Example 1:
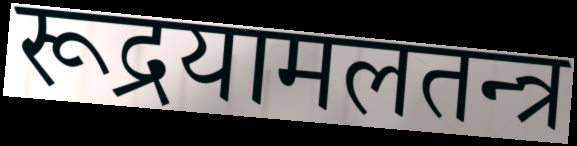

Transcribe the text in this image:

रूद्रयामलतन्त्र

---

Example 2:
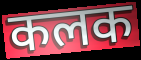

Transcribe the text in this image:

कलक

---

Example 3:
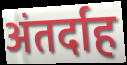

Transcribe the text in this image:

अंतर्दाह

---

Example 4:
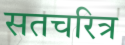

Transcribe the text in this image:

सतचरित्र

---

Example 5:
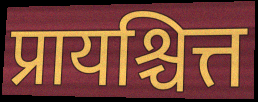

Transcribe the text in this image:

प्रायश्चित्त